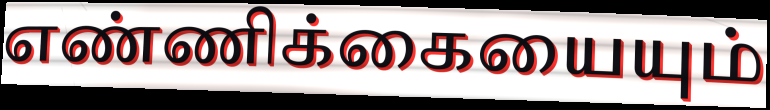
எண்ணிக்கையையும்